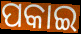
ପକାଇ